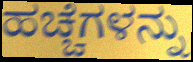
ಹಚ್ಚೆಗಳನ್ನು